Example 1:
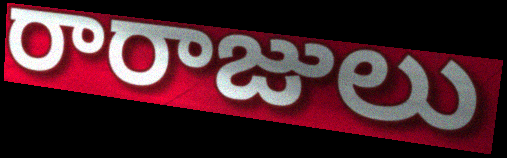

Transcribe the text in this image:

రారాజులు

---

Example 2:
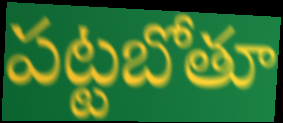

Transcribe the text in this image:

పట్టబోతూ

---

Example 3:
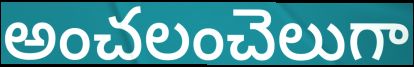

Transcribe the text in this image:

అంచలంచెలుగా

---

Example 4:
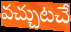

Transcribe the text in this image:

వచ్చుటచే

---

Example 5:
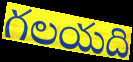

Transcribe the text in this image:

గలయది